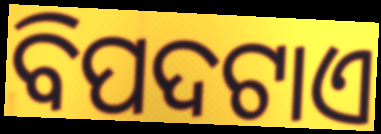
ବିପଦଟାଏ